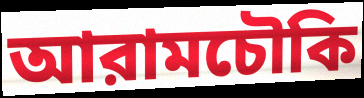
আরামচৌকি